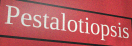
Pestalotiopsis